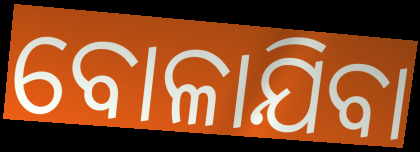
ବୋଳାଯିବା